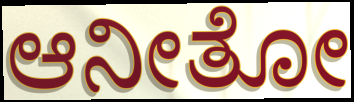
ಆನೀತೋ